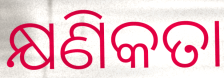
କ୍ଷଣିକତା